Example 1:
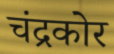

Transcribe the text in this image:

चंद्रकोर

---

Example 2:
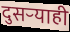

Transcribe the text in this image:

दुसऱ्याही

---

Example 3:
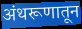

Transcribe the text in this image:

अंथरूणातून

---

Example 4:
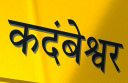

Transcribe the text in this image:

कदंबेश्वर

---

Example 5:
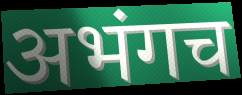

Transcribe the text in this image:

अभंगच